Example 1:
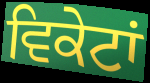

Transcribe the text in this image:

ਵਿਕੇਟਾਂ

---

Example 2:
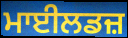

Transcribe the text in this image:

ਮਾਈਲਡਜ਼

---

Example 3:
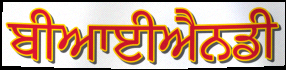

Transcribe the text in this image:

ਬੀਆਈਐਨਡੀ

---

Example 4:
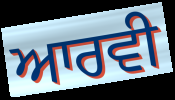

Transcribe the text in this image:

ਆਰਵੀ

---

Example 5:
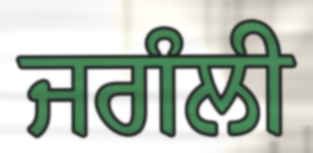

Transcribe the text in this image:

ਜਗੰਲੀ